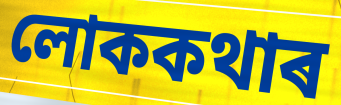
লোককথাৰ